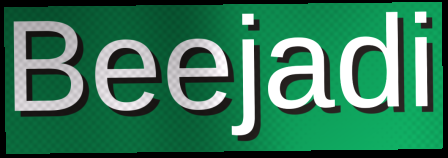
Beejadi